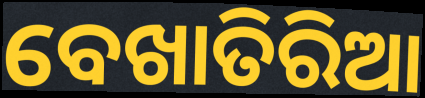
ବେଖାତିରିଆ